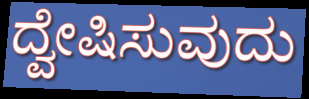
ದ್ವೇಷಿಸುವುದು